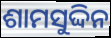
ଶାମସୁଦ୍ଦିନ